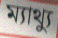
ম্যাথ্যু